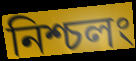
নিশ্চলং